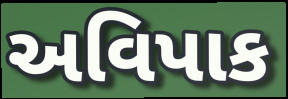
અવિપાક